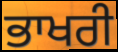
ਭਾਖਰੀ